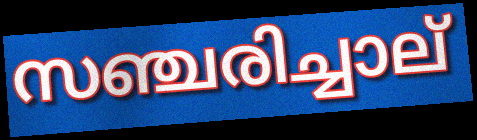
സഞ്ചരിച്ചാല്